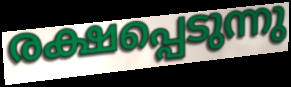
രക്ഷപ്പെടുന്നു